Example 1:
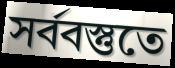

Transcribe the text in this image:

সর্ববস্তুতে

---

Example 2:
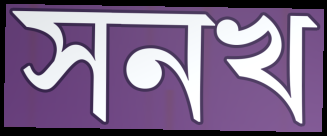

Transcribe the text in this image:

সনখ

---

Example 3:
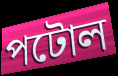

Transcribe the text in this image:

পটোল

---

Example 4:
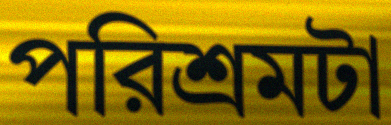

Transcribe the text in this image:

পরিশ্রমটা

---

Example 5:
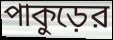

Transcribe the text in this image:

পাকুড়ের